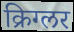
क्रिग्लर